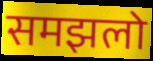
समझलो